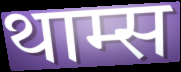
थाम्स